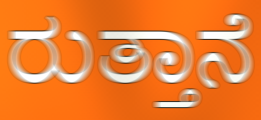
ರುತ್ತಾನೆ